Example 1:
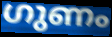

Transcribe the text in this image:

ഗുണം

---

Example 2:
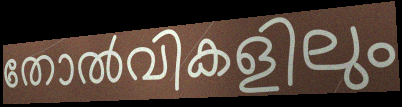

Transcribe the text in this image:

തോൽവികളിലും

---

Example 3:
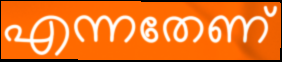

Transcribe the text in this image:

എന്നതേണ്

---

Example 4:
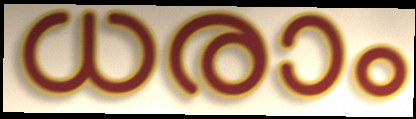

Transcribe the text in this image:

ധരാം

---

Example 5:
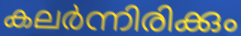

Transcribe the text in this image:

കലർന്നിരിക്കും